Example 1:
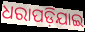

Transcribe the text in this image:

ଧରାପଡ଼ିଯାଇ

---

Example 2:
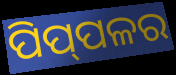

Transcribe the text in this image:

ପିପ୍‌ପଳର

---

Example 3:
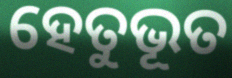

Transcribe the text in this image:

ହେତୁଭୂତ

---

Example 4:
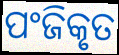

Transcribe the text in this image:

ପଂଜିକୃତ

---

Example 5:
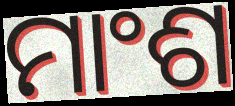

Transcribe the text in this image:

ମାଂଶ